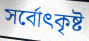
সৰ্বোৎকৃষ্ট